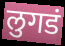
लुगडं